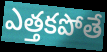
ఎత్తకపోతే